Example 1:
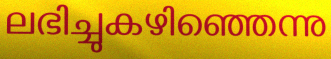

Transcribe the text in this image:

ലഭിച്ചുകഴിഞ്ഞെന്നു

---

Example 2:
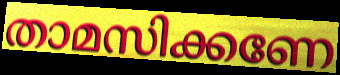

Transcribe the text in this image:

താമസിക്കണേ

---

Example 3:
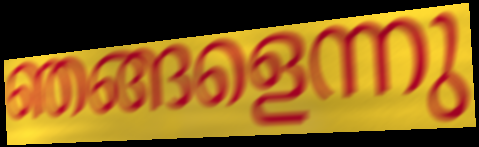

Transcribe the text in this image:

ഞങ്ങളെന്നു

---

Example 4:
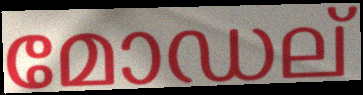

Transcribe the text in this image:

മോഡല്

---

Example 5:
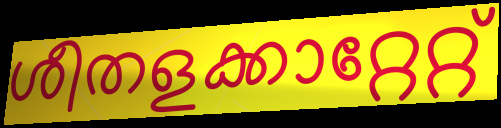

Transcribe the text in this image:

ശീതളക്കാറ്റേറ്റ്